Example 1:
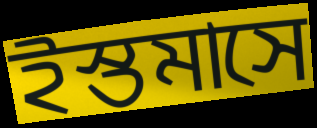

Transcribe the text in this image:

ইস্তমাসে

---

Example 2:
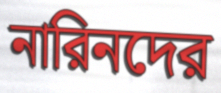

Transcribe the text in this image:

নারিনদের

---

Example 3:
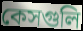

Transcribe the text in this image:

কেসগুলি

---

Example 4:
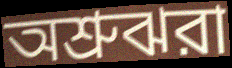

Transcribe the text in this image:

অশ্রুঝরা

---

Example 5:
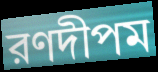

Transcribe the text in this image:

রণদীপম